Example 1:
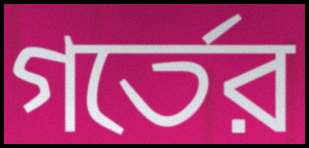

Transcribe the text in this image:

গর্তের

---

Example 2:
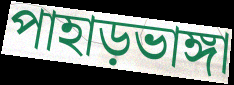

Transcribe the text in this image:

পাহাড়ভাঙ্গা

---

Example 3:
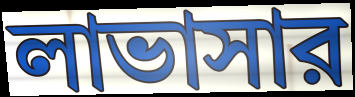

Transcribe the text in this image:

লাভাসার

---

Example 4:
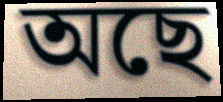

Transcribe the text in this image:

অছে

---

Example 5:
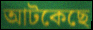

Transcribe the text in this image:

আটকেছে